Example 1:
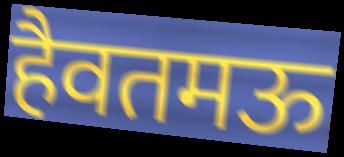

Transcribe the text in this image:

हैवतमऊ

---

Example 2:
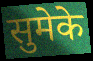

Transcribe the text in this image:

सुमेके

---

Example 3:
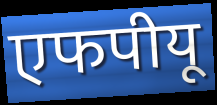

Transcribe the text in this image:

एफपीयू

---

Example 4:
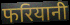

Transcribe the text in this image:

फरियानी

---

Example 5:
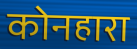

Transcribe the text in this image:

कोनहारा